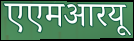
एएमआरयू